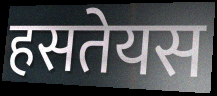
हसतेयस